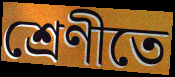
শ্ৰেণীতে